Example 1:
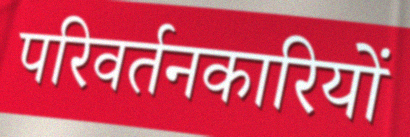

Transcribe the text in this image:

परिवर्तनकारियों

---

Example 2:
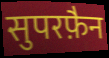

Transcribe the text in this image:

सुपरफ़ैन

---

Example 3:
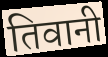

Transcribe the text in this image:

तिवानी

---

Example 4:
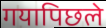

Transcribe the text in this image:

गयापिछले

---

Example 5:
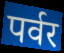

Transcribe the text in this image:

पर्वर